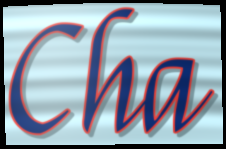
Cha